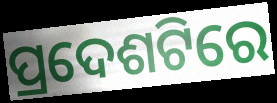
ପ୍ରଦେଶଟିରେ